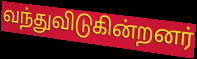
வந்துவிடுகின்றனர்